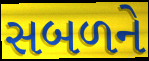
સબળને